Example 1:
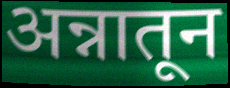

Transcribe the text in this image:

अन्नातून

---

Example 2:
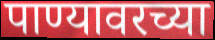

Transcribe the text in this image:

पाण्यावरच्या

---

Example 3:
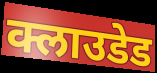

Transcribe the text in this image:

क्लाउडेड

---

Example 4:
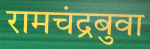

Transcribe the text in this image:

रामचंद्रबुवा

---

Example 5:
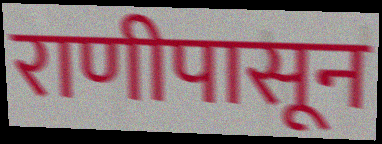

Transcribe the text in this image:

राणीपासून